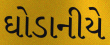
ઘોડાનીયે